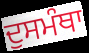
ਦੁਸਮੰਥਾ